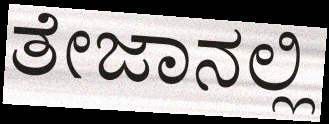
ತೇಜಾನಲ್ಲಿ